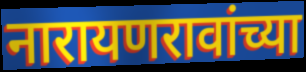
नारायणरावांच्या